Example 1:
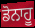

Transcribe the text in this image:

ਡੋਨਾਹੂ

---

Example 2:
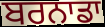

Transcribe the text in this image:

ਬਰਨਾਡਾ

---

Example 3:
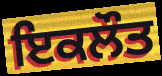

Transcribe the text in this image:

ਇਕਲੌਤ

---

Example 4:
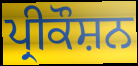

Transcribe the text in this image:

ਪ੍ਰੀਕੌਸ਼ਨ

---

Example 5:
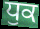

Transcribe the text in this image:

ਧੁਕ